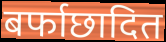
बर्फाछादित